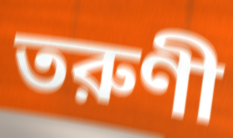
তরুণী